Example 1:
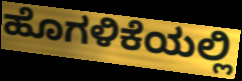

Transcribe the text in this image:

ಹೊಗಳಿಕೆಯಲ್ಲಿ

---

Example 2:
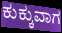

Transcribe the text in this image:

ಕುಕ್ಕುವಾಗ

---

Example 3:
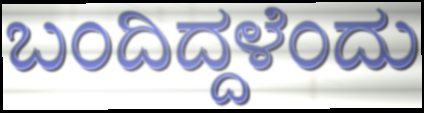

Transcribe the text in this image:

ಬಂದಿದ್ದಳೆಂದು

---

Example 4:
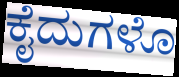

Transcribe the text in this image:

ಕೈದುಗಳೊ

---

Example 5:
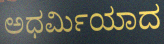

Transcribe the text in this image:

ಅಧರ್ಮಿಯಾದ